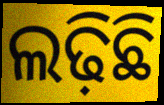
ଲଢ଼ିଛି